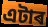
এটাৰ